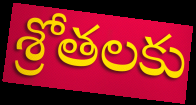
శ్రోతలకు